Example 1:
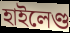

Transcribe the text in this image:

হাইলেণ্ড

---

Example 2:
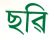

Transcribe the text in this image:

ছৱি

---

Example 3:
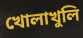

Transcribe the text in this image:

খোলাখুলি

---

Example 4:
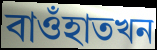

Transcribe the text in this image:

বাওঁহাতখন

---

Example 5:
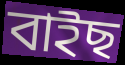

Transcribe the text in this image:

বাইছ